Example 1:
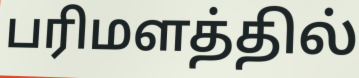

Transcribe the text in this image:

பரிமளத்தில்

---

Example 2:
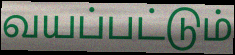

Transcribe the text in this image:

வயப்பட்டும்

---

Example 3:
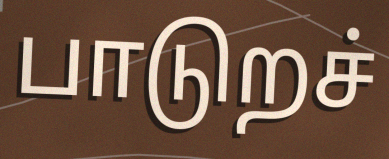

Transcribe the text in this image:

பாடுறச்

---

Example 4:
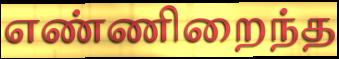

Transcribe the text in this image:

எண்ணிறைந்த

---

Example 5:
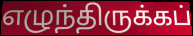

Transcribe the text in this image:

எழுந்திருக்கப்